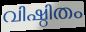
വിഷ്ഠിതം